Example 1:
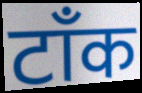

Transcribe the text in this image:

टॉंक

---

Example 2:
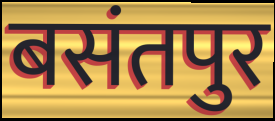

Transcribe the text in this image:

बसंतपुर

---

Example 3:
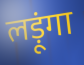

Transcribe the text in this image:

लड़ूंगा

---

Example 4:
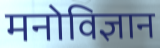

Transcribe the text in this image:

मनोविज्ञान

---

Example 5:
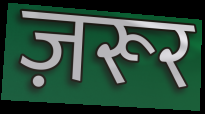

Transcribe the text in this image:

ज़रूर